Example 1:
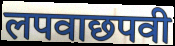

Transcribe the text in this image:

लपवाछपवी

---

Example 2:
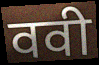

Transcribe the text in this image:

ववी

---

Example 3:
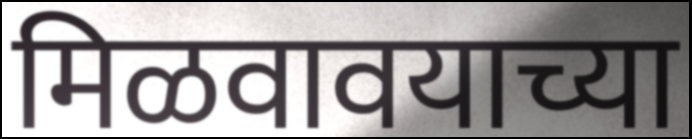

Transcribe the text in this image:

मिळवावयाच्या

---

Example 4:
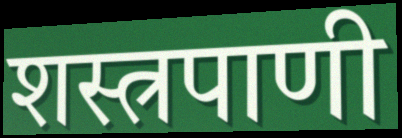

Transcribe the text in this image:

शस्त्रपाणी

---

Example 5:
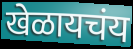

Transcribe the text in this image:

खेळायचंय